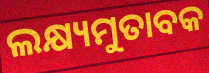
ଲକ୍ଷ୍ୟମୁତାବକ